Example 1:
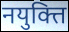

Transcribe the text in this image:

नयुक्ति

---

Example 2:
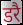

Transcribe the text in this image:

डरै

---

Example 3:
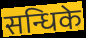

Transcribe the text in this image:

सन्धिके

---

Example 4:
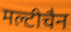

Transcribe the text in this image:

मल्टीचैन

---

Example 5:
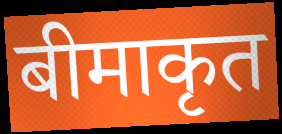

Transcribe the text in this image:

बीमाकृत